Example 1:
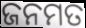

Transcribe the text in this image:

ଜନମତ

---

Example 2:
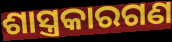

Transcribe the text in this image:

ଶାସ୍ତ୍ରକାରଗଣ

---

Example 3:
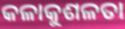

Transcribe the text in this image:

କଳାକୁଶଳତା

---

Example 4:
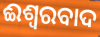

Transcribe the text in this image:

ଈଶ୍ୱରବାଦ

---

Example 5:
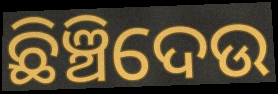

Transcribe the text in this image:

ଛିଞ୍ଚିଦେଉ